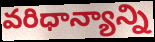
వరిధాన్యాన్ని